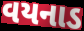
વયનાડ